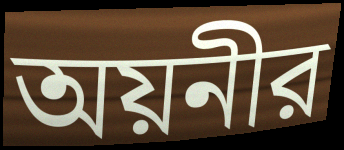
অয়নীর